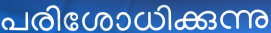
പരിശോധിക്കുന്നു